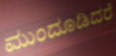
ಮುಂದೂಡಿದರೆ